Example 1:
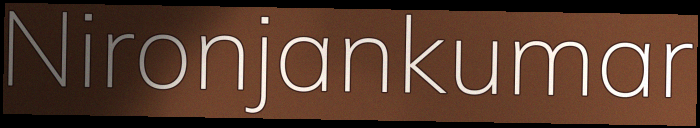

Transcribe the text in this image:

Nironjankumar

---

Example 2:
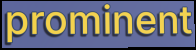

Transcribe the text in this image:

prominent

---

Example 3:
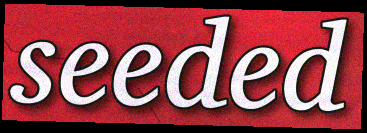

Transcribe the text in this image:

seeded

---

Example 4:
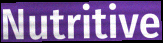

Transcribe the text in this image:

Nutritive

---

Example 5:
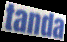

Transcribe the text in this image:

tanda